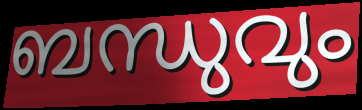
ബന്ധുവും